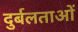
दुर्बलताओं